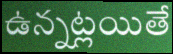
ఉన్నట్లయితే